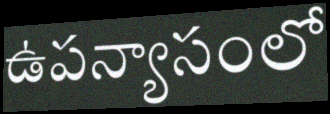
ఉపన్యాసంలో